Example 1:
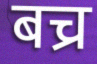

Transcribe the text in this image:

बच्र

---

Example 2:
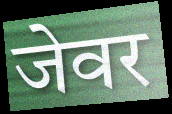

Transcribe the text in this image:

जेवर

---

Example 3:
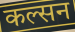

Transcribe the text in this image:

कल्सन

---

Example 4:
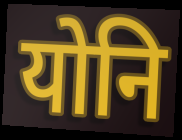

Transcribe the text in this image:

योनि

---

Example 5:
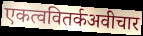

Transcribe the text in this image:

एकत्ववितर्कअवीचार